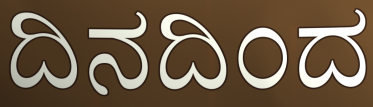
ದಿನದಿಂದ